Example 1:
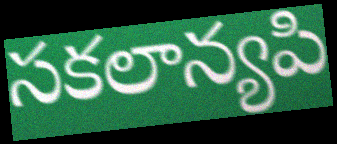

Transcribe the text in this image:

సకలాన్యపి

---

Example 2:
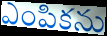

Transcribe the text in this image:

ఎంపికను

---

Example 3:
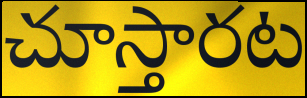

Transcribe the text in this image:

చూస్తారట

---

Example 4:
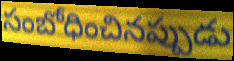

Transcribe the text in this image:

సంబోధించినప్పుడు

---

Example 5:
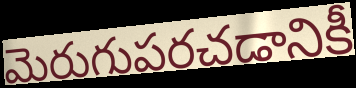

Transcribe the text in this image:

మెరుగుపరచడానికీ